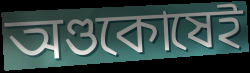
অণ্ডকোষেই